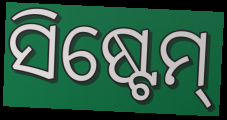
ସିଷ୍ଟେମ୍